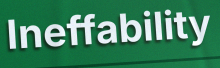
Ineffability